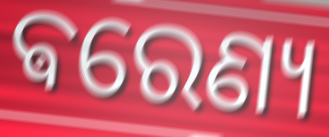
ଵରେଣ୍ୟ